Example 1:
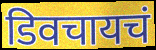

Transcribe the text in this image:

डिवचायचं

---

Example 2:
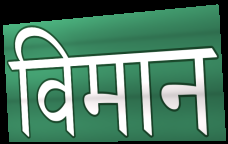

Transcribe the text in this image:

विमान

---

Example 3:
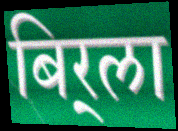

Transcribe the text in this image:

बिर्ला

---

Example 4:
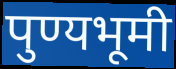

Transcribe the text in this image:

पुण्यभूमी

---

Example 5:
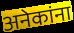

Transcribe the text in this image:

अनेकांना